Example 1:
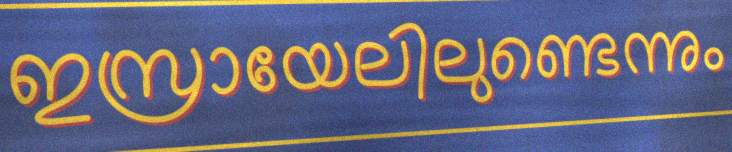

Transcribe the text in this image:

ഇസ്രായേലിലുണ്ടെന്നും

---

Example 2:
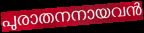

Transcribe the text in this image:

പുരാതനനായവൻ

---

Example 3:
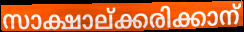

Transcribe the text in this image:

സാക്ഷാല്ക്കരിക്കാന്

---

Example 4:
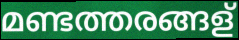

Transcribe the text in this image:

മണ്ടത്തരങ്ങള്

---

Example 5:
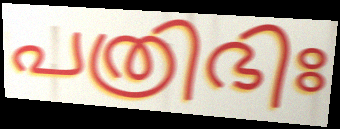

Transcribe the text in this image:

പത്രിഭിഃ